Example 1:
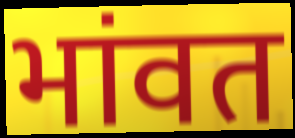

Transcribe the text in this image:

भांवत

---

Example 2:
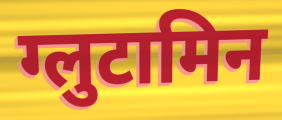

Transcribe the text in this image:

ग्लुटामिन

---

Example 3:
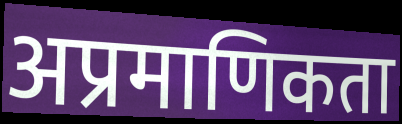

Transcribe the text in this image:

अप्रमाणिकता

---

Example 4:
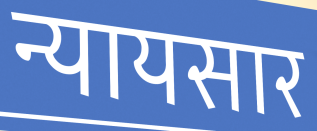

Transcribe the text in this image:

न्यायसार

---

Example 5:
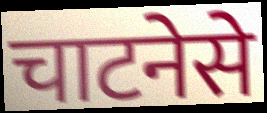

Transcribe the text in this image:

चाटनेसे